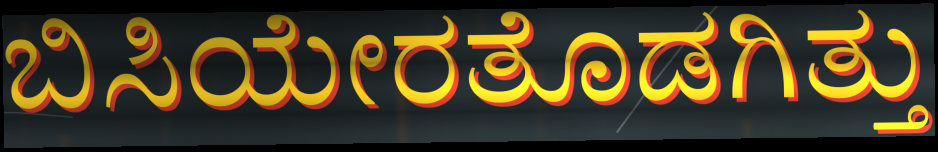
ಬಿಸಿಯೇರತೊಡಗಿತ್ತು